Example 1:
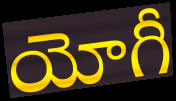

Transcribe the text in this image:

యోగీ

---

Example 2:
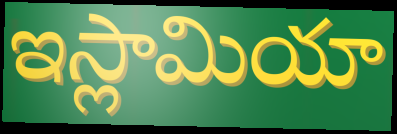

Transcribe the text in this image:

ఇస్లామియా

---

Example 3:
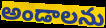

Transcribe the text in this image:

అండాలను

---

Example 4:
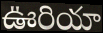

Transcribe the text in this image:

ఊరియా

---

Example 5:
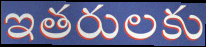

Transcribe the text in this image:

ఇతరులకు